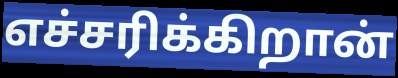
எச்சரிக்கிறான்